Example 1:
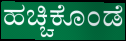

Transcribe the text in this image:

ಹಚ್ಚಿಕೊಂಡೆ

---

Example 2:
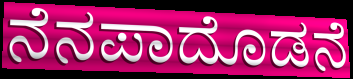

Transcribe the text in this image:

ನೆನಪಾದೊಡನೆ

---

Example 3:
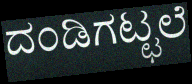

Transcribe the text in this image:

ದಂಡಿಗಟ್ಟಲೆ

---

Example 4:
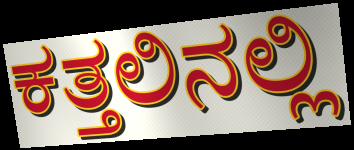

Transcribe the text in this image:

ಕತ್ತಲಿನಲ್ಲಿ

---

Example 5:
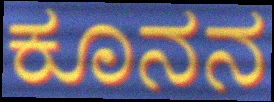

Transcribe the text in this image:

ಕೂನನ